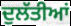
ਦੁਲੱਤੀਆਂ